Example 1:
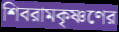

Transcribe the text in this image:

শিবরামকৃষ্ণণের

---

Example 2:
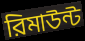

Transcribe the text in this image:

রিমাউন্ট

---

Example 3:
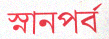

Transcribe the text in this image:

স্নানপর্ব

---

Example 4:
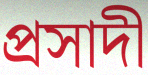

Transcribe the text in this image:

প্রসাদী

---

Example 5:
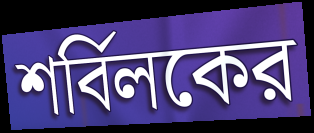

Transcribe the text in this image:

শর্বিলকের